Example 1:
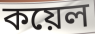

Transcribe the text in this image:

কয়েল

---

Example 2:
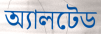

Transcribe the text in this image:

অ্যালটেড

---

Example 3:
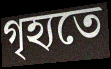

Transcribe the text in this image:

গৃহ্যতে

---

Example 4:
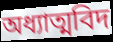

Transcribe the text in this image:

অধ্যাত্মবিদ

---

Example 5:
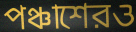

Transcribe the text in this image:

পঞ্চাশেরও